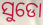
ସୁଡୋ